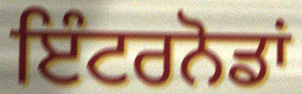
ਇੰਟਰਨੋਡਾਂ